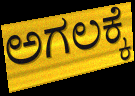
ಅಗಲಕ್ಕೆ